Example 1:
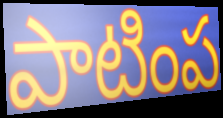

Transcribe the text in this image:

పాటింప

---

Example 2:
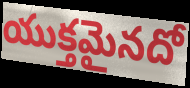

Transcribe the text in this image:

యుక్తమైనదో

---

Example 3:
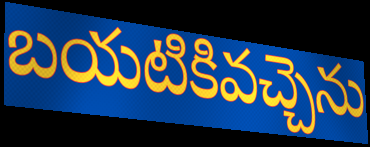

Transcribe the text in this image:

బయటికివచ్చెను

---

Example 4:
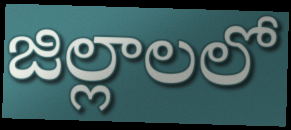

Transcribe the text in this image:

జిల్లాలలో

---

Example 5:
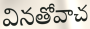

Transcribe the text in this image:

వినతోవాచ